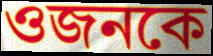
ওজনকে